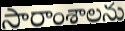
సారాంశాలను